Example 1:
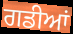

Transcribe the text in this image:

ਗਡੀਆਂ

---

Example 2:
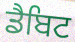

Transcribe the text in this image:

ਡੈਬਿਟ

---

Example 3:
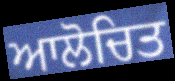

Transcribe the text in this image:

ਆਲੋਚਿਤ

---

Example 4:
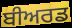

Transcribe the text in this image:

ਬੀਅਰਡ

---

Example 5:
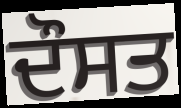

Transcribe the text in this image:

ਦੌਸਤ